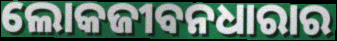
ଲୋକଜୀବନଧାରାର